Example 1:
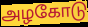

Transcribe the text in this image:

அழகோடு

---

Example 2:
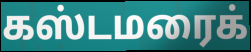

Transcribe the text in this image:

கஸ்டமரைக்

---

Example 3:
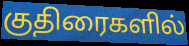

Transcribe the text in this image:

குதிரைகளில்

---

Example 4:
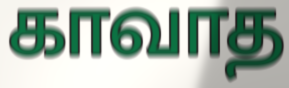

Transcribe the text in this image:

காவாத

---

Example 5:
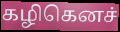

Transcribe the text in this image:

கழிகெனச்